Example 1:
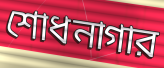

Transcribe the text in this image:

শোধনাগার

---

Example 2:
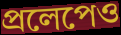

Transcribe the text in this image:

প্রলেপেও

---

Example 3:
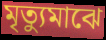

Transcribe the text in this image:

মৃত্যুমাঝে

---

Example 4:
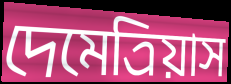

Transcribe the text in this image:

দেমেত্রিয়াস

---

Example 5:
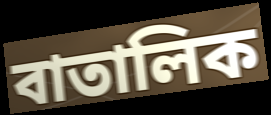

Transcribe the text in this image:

বাতালিক